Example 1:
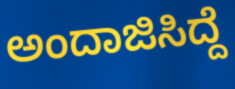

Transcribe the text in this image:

ಅಂದಾಜಿಸಿದ್ದೆ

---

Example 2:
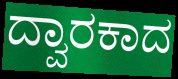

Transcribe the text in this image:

ದ್ವಾರಕಾದ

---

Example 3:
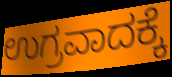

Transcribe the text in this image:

ಉಗ್ರವಾದಕ್ಕೆ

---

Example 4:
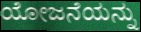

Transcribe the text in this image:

ಯೋಜನೆಯನ್ನು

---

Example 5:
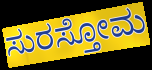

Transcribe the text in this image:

ಸುರಸ್ತೋಮ